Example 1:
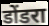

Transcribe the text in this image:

डोंडरा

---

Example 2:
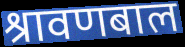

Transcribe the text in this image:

श्रावणबाल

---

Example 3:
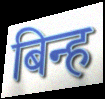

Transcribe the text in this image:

बिन्ह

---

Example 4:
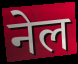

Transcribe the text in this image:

नेल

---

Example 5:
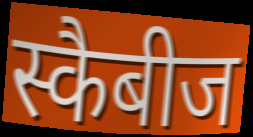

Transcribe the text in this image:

स्कैबीज